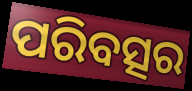
ପରିବତ୍ସର